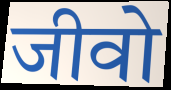
जीवो